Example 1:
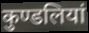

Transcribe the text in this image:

कुण्डलियां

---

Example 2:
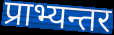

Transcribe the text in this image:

प्राभ्यन्तर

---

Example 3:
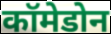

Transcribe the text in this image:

कॉमेडोन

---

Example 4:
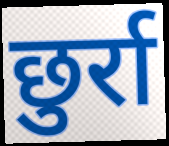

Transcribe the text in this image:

छुर्रा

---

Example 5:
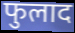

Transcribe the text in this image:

फुलाद